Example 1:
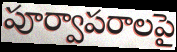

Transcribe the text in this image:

పూర్వాపరాలపై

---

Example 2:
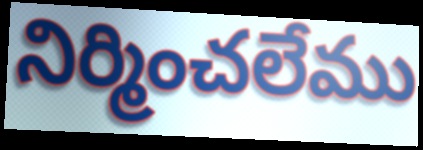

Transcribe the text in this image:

నిర్మించలేము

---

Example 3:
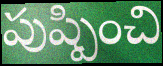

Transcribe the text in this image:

పుష్పించి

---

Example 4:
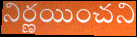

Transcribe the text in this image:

నిర్ణయించని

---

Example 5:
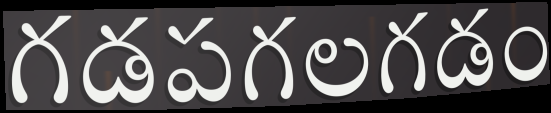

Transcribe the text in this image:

గడపగలగడం